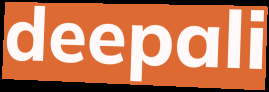
deepali